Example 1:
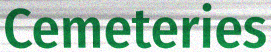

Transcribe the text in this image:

Cemeteries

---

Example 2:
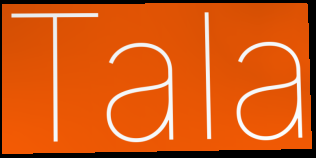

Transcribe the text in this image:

Tala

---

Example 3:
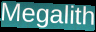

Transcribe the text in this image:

Megalith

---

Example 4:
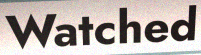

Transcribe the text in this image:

Watched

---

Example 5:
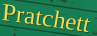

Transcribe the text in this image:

Pratchett